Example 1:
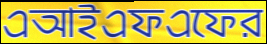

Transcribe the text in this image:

এআইএফএফের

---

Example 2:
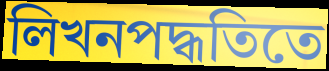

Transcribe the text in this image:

লিখনপদ্ধতিতে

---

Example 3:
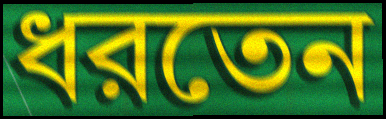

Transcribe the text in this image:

ধরতেন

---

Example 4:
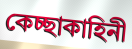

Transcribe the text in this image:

কেচ্ছাকাহিনী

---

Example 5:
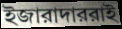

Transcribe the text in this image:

ইজারাদাররাই